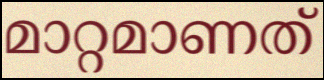
മാറ്റമാണത്